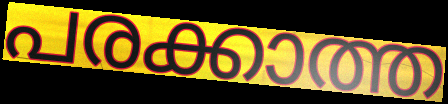
പരക്കാത്ത